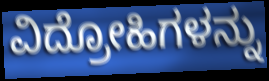
ವಿದ್ರೋಹಿಗಳನ್ನು